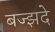
बज्झदे